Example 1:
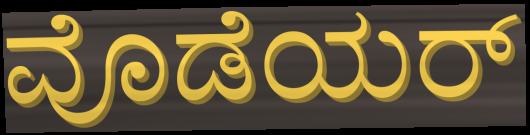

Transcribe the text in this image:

ವೊಡೆಯರ್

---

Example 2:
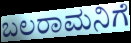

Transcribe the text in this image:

ಬಲರಾಮನಿಗೆ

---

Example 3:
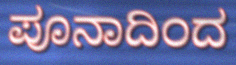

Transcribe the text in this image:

ಪೂನಾದಿಂದ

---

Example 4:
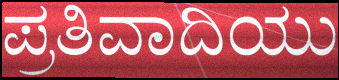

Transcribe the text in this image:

ಪ್ರತಿವಾದಿಯು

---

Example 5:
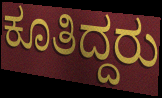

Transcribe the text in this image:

ಕೂತಿದ್ದರು